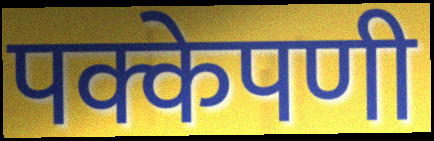
पक्केपणी